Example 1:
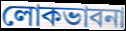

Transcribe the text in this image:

লোকভাবনা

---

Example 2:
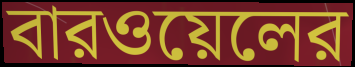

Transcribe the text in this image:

বারওয়েলের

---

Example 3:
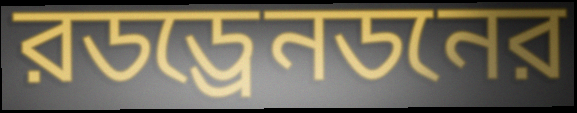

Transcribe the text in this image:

রডড্রেনডনের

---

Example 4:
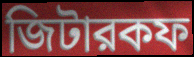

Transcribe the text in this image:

জিটারকফ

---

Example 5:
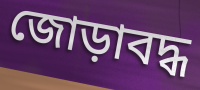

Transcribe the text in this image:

জোড়াবদ্ধ